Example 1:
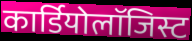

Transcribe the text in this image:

कार्डियोलॉजिस्ट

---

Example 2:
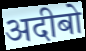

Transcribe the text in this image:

अदीबो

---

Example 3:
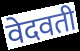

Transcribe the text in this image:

वेदवती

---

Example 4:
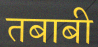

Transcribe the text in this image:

तबाबी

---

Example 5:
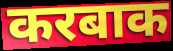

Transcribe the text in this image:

करबाक